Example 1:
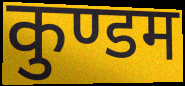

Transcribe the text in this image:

कुण्डम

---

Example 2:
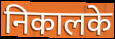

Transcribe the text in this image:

निकालके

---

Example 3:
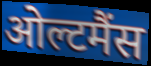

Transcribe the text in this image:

ओल्टमैंस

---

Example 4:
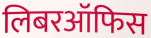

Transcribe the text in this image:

लिबरऑफिस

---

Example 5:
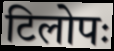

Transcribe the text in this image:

टिलोपः